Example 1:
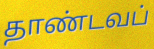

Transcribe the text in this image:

தாண்டவப்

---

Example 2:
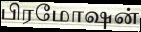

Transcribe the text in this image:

பிரமோஷன்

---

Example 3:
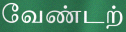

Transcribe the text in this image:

வேண்டற்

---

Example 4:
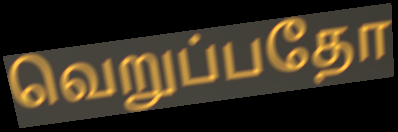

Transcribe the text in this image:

வெறுப்பதோ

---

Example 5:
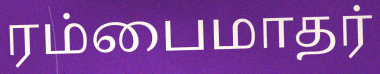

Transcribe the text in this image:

ரம்பைமாதர்